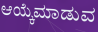
ಆಯ್ಕೆಮಾಡುವ